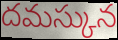
దమస్కున